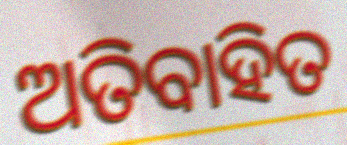
ଅତିବାହିତ